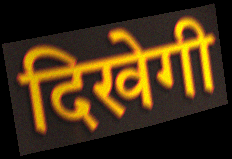
दिखेगी